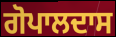
ਗੋਪਾਲਦਾਸ